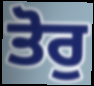
ਤੋਰੁ